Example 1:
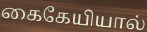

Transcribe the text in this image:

கைகேயியால்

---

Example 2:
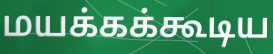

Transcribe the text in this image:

மயக்கக்கூடிய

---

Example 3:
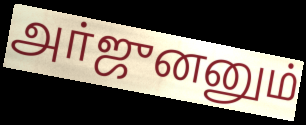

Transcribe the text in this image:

அர்ஜுனனும்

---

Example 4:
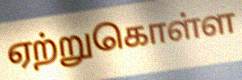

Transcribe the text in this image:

ஏற்றுகொள்ள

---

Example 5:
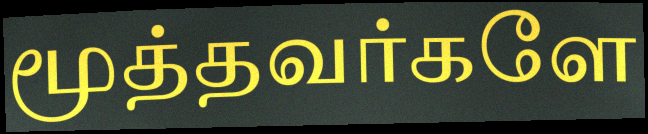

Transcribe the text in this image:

மூத்தவர்களே